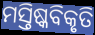
ମସ୍ତିଷ୍କବିକୃତି